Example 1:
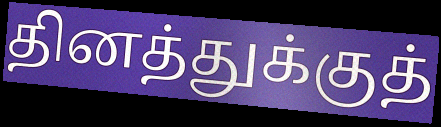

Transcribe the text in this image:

தினத்துக்குத்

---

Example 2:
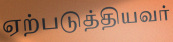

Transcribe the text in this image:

ஏற்படுத்தியவர்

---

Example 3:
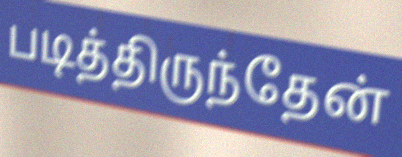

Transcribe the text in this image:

படித்திருந்தேன்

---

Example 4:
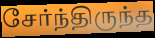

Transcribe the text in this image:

சேர்ந்திருந்த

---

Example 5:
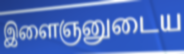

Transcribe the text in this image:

இளைஞனுடைய